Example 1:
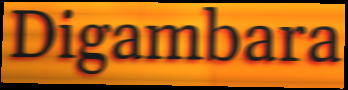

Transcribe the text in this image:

Digambara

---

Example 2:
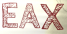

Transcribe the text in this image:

EAX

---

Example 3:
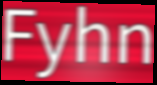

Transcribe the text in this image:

Fyhn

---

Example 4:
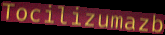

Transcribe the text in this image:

Tocilizumazb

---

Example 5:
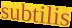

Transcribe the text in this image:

subtilis